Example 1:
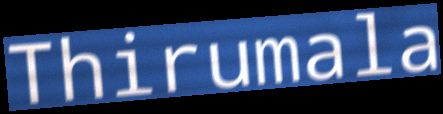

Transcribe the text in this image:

Thirumala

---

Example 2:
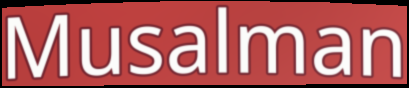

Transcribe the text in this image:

Musalman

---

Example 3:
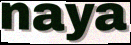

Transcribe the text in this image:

naya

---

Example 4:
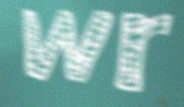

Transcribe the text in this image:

wr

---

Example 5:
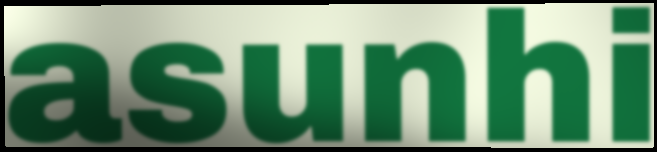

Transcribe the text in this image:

asunhi